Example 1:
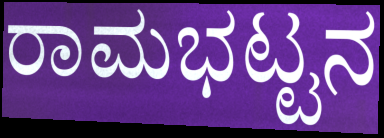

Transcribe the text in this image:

ರಾಮಭಟ್ಟನ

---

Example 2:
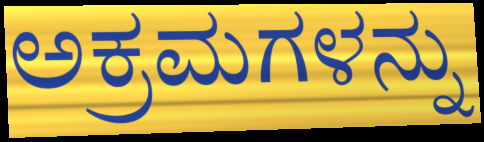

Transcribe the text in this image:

ಅಕ್ರಮಗಳನ್ನು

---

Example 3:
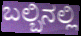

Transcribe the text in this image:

ಬಲ್ಬಿನಲ್ಲಿ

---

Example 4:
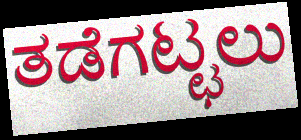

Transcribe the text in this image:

ತಡೆಗಟ್ಟಲು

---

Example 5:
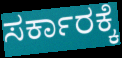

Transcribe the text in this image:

ಸರ್ಕಾರಕ್ಕೆ